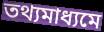
তথ্যমাধ্যমে